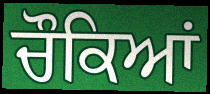
ਚੌਕਿਆਂ